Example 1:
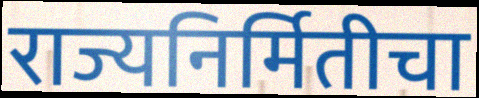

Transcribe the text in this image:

राज्यनिर्मितीचा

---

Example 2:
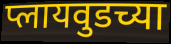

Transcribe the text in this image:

प्लायवुडच्या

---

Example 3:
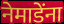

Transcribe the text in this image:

नेमाडेंना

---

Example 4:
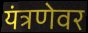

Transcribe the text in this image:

यंत्रणेवर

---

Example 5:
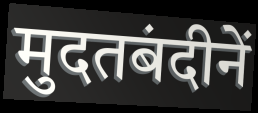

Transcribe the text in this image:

मुदतबंदीनें